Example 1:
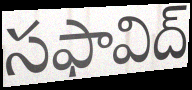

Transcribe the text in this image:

సఫావిద్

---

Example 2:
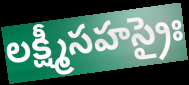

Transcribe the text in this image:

లక్ష్మీసహస్రైః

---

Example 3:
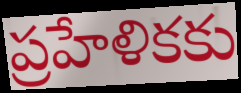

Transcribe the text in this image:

ప్రహేళికకు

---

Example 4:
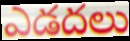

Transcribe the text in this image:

ఎడదలు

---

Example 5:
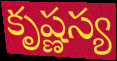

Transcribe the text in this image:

కృష్ణస్య